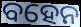
ବହେନ